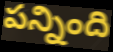
పన్నింది